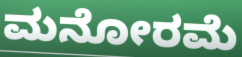
ಮನೋರಮೆ